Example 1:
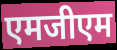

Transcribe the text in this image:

एमजीएम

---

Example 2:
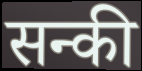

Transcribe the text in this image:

सन्की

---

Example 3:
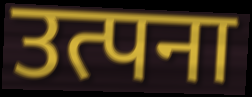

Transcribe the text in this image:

उत्पना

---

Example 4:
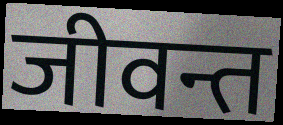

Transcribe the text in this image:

जीवन्त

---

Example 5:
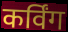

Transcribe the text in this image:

कर्विंग